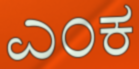
ಎಂಕ